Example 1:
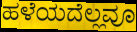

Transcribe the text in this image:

ಹಳೆಯದೆಲ್ಲವೂ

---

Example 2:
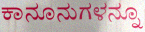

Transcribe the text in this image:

ಕಾನೂನುಗಳನ್ನೂ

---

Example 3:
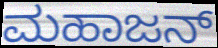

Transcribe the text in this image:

ಮಹಾಜನ್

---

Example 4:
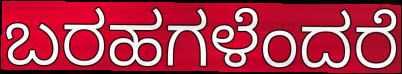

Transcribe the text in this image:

ಬರಹಗಳೆಂದರೆ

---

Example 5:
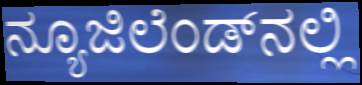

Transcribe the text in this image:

ನ್ಯೂಜಿಲೆಂಡ್‌ನಲ್ಲಿ